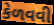
કેળવવી